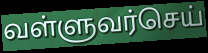
வள்ளுவர்செய்